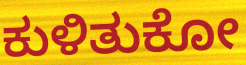
ಕುಳಿತುಕೋ